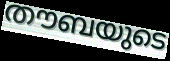
തൗബയുടെ